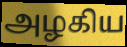
அழகிய